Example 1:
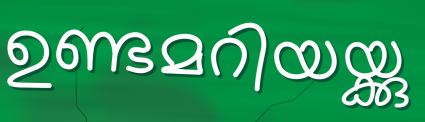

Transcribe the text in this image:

ഉണ്ടമറിയയ്ക്കു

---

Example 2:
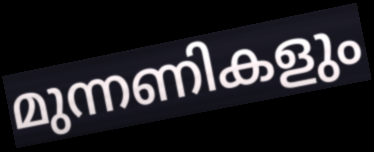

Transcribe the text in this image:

മുന്നണികളും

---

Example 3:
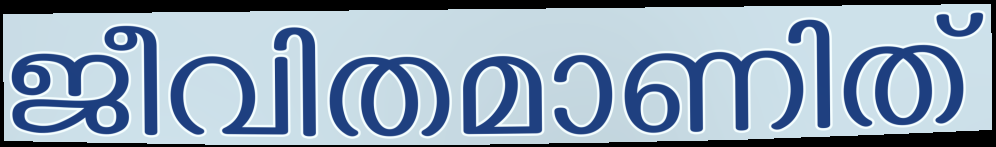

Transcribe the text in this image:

ജീവിതമാണിത്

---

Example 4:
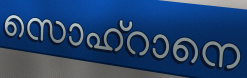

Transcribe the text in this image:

സൊഹ്റാനെ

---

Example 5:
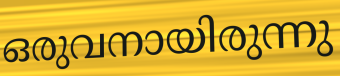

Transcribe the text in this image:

ഒരുവനായിരുന്നു